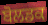
ਬੋਲਡਕ